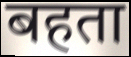
बहता